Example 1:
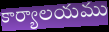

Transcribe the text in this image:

కార్యాలయము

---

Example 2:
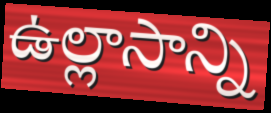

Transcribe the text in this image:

ఉల్లాసాన్ని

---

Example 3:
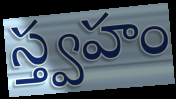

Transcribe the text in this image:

స్త్వహం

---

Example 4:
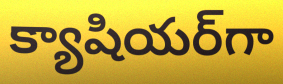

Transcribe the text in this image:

క్యాషియర్‌గా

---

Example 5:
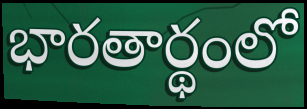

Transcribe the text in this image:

భారతార్థంలో